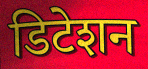
डिटेशन